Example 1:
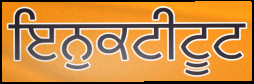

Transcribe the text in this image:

ਇਨੁਕਟੀਟੂਟ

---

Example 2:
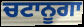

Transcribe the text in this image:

ਚਟਾਨੂਗਾ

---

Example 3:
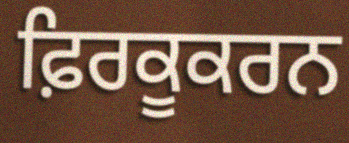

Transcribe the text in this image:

ਫ਼ਿਰਕੂਕਰਨ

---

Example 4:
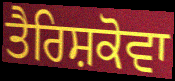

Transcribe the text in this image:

ਤੈਰਿਸ਼ਕੋਵਾ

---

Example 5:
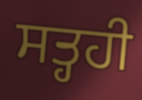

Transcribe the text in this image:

ਸਤ੍ਹਹੀ